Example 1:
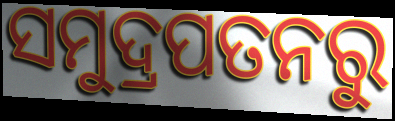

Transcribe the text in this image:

ସମୁଦ୍ରପତନରୁ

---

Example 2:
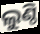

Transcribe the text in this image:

ଲୁଣ୍ଠି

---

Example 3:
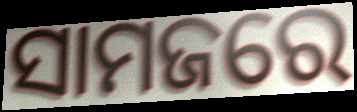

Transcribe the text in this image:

ସାମଜରେ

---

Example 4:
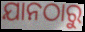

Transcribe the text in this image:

ଯାନଠାରୁ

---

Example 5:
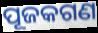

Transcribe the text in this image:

ପୂଜକଗଣ